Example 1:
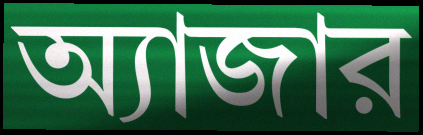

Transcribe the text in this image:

অ্যাজার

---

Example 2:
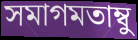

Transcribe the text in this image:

সমাগমতাম্বু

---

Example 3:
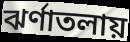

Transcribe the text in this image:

ঝর্ণাতলায়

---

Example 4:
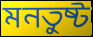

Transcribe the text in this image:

মনতুষ্ট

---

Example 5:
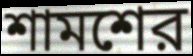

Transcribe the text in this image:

শামশের